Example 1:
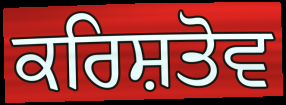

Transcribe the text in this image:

ਕਰਿਸ਼ਤੋਵ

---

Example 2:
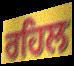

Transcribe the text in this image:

ਰਹਿਲ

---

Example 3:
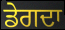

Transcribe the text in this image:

ਡੇਗਦਾ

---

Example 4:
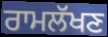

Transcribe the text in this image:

ਰਾਮਲੱਖਣ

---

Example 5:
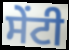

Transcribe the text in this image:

ਸੇਂਟੀ